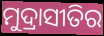
ମୁଦ୍ରାସୀତିର